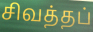
சிவத்தப்